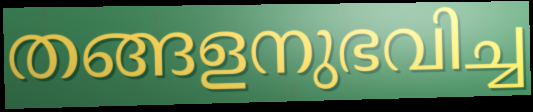
തങ്ങളനുഭവിച്ച